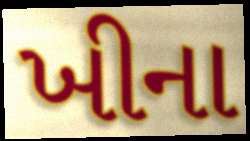
ખીના